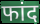
फांद